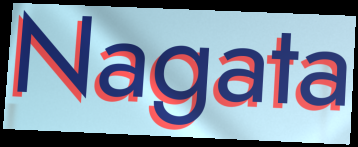
Nagata